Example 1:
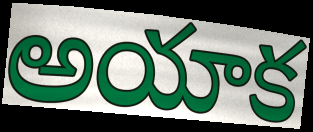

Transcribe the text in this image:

అయాక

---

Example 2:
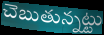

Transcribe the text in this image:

చెబుతున్నట్టు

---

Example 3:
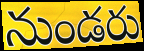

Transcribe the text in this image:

నుండరు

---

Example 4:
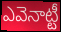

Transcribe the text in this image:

ఎవెనాట్టీ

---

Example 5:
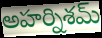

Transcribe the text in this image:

అహర్నిశమ్